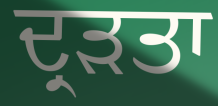
ਦ੍ਰੜਤਾ